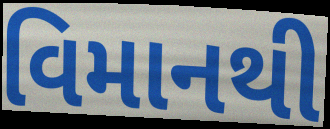
વિમાનથી